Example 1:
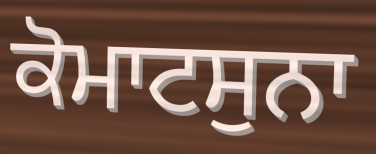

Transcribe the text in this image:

ਕੋਮਾਟਸੁਨਾ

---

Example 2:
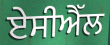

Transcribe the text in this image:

ਏਸੀਐੱਲ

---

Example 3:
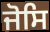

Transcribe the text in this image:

ਜੋਸਿ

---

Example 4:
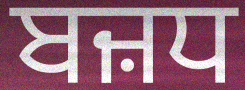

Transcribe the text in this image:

ਬਜ਼ਧ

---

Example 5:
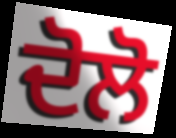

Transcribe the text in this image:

ਦੋਲੋ